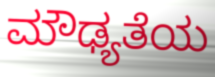
ಮೌಢ್ಯತೆಯ